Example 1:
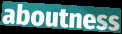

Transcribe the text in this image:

aboutness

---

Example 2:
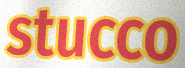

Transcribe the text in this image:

stucco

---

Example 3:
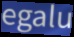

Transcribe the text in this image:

egalu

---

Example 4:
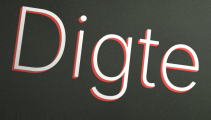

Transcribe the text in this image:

Digte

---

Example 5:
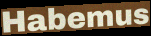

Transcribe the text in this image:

Habemus